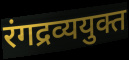
रंगद्रव्ययुक्त